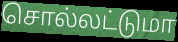
சொல்லட்டுமா